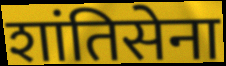
शांतिसेना